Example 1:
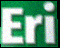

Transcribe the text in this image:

Eri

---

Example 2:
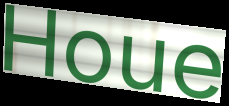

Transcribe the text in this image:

Houe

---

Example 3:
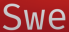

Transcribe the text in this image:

Swe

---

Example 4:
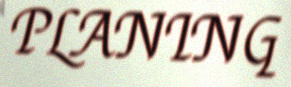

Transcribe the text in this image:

PLANING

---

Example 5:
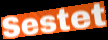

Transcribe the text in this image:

Sestet